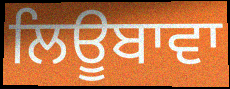
ਲਿਊਬਾਵਾ